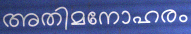
അതിമനോഹരം